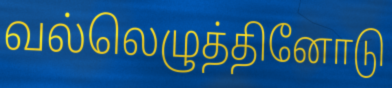
வல்லெழுத்தினோடு